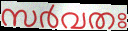
സർവതഃ